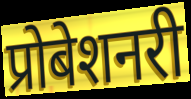
प्रोबेशनरी